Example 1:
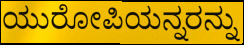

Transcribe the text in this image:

ಯುರೋಪಿಯನ್ನರನ್ನು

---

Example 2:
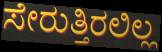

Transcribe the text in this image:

ಸೇರುತ್ತಿರಲಿಲ್ಲ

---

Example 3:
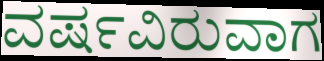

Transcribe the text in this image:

ವರ್ಷವಿರುವಾಗ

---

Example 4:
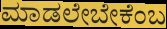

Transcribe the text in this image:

ಮಾಡಲೇಬೇಕೆಂಬ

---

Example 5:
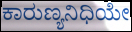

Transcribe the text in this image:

ಕಾರುಣ್ಯನಿಧಿಯೇ